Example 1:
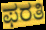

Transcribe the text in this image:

ಫರತಿ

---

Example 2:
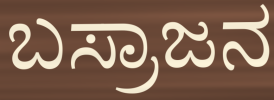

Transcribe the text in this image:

ಬಸ್ರಾಜನ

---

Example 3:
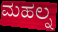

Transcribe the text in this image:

ಮಹಲ್ನ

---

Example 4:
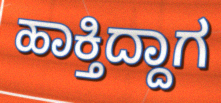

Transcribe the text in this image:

ಹಾಕ್ತಿದ್ದಾಗ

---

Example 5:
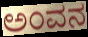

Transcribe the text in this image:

ಅಂವನ